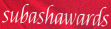
subashawards